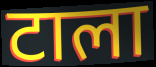
टाला